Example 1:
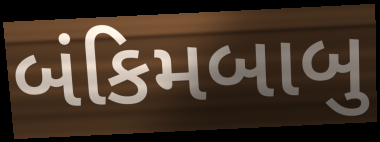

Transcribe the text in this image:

બંકિમબાબુ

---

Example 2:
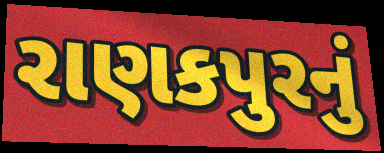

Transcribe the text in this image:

રાણકપુરનું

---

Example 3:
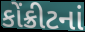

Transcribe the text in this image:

કોંક્રીટનાં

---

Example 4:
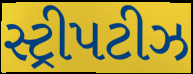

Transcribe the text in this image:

સ્ટ્રીપટીઝ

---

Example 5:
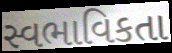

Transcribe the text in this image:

સ્વભાવિકતા